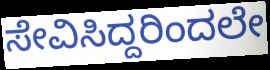
ಸೇವಿಸಿದ್ದರಿಂದಲೇ